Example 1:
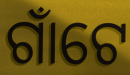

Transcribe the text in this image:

ଗାଁଟେ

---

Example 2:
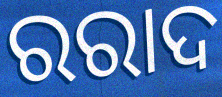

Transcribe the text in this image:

ରରାଦ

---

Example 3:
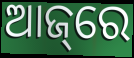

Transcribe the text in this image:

ଆଜ୍‌ରେ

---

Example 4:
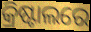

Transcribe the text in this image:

କ୍ରିଷ୍ଟାଲରେ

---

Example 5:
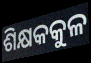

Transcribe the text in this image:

ଶିକ୍ଷକକୁଳ